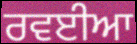
ਰਵਈਆ